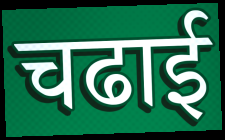
चढाई